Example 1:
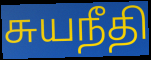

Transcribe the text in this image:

சுயநீதி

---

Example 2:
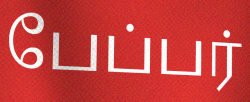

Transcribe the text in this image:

பேப்பர்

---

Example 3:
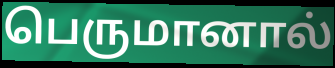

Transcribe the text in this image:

பெருமானால்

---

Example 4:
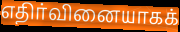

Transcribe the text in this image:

எதிர்வினையாகக்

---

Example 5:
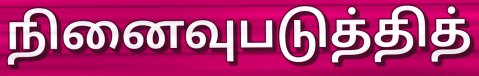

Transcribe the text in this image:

நினைவுபடுத்தித்